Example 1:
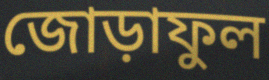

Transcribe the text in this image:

জোড়াফুল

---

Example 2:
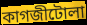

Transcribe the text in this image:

কাগজীটোলা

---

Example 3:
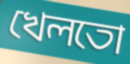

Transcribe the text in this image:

খেলতো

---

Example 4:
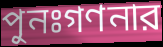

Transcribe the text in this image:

পুনঃগণনার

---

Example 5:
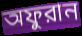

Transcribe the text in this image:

অফুরান